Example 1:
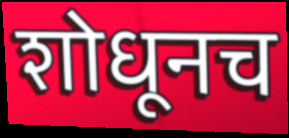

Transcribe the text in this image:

शोधूनच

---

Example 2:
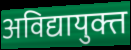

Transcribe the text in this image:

अविद्यायुक्त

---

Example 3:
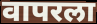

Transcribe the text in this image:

वापरला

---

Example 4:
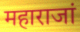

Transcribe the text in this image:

महाराजां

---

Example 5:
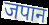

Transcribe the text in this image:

जपान